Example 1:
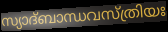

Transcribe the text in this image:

സ്യാദ്ബാന്ധവസ്ത്രിയഃ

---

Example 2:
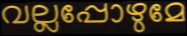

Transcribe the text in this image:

വല്ലപ്പോഴുമേ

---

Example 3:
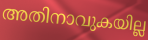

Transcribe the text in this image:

അതിനാവുകയില്ല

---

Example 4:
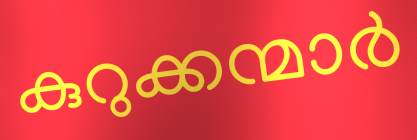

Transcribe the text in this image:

കുറുക്കന്മാർ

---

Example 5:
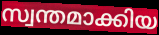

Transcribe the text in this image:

സ്വന്തമാക്കിയ